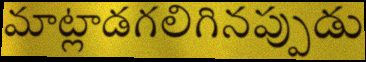
మాట్లాడగలిగినప్పుడు